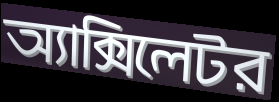
অ্যাক্সিলেটর